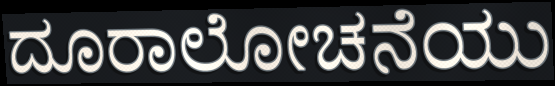
ದೂರಾಲೋಚನೆಯು